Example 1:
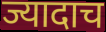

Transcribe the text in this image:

ज्यादाच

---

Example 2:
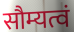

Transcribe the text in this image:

सौम्यत्वं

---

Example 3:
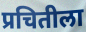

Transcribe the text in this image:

प्रचितीला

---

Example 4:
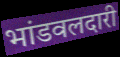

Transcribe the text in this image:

भांडवलदारी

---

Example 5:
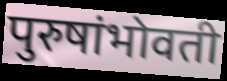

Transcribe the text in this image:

पुरुषांभोवती